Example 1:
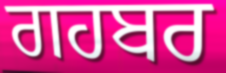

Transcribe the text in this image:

ਗਹਬਰ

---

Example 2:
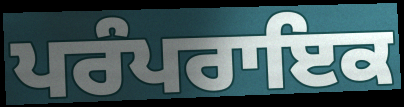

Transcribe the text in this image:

ਪਰੰਪਰਾਇਕ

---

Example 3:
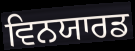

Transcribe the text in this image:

ਵਿਨਯਾਰਡ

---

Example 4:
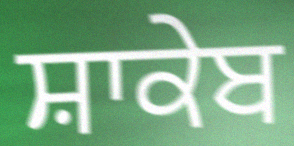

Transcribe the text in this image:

ਸ਼ਾਕੇਬ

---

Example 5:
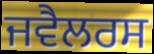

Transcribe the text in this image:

ਜਵੈਲਰਸ